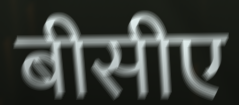
बीसीए